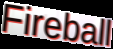
Fireball